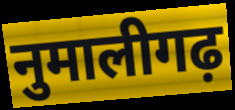
नुमालीगढ़